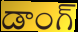
డాంగ్